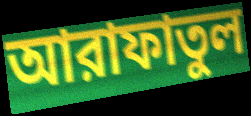
আরাফাতুল